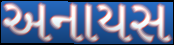
અનાયસ